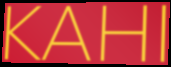
KAHI